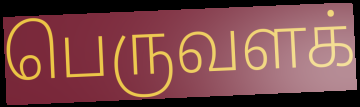
பெருவளக்